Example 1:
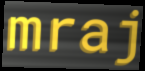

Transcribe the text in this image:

mraj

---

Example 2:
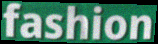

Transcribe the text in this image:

fashion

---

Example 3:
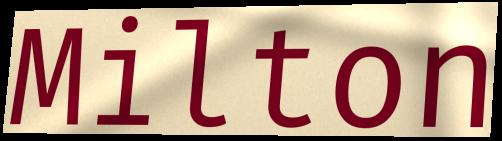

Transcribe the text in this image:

Milton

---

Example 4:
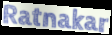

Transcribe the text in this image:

Ratnakar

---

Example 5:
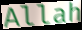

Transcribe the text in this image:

Allah